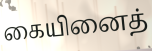
கையினைத்